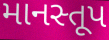
માનસ્તૂપ